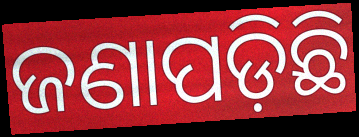
ଜଣାପଡ଼ିଛି